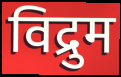
विद्रुम